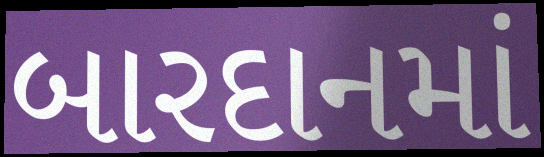
બારદાનમાં